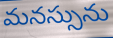
మనస్సును